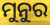
ମୁନୁର